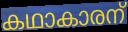
കഥാകാരന്